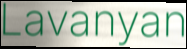
Lavanyan